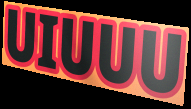
UIUUU